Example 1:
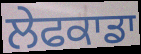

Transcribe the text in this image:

ਲੇਫਕਾਡਾ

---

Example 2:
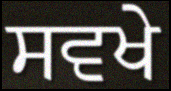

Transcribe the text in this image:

ਸਵਖੇ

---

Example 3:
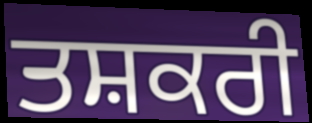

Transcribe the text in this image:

ਤਸ਼ਕਰੀ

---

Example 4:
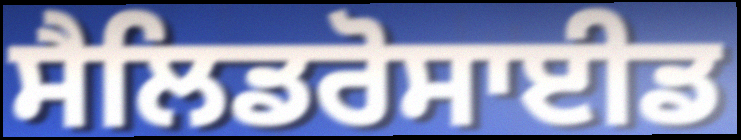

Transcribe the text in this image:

ਸੈਲਿਡਰੋਸਾਈਡ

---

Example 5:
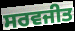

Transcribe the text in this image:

ਸਰਵਜੀਤ